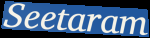
Seetaram